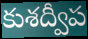
కుశద్వీప